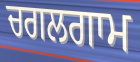
ਚਗਲਗਾਮ